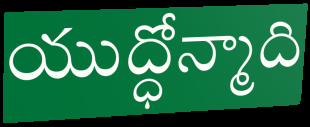
యుద్ధోన్మాది